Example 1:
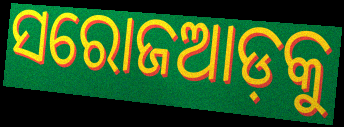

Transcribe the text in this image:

ସରୋଜଆଡ଼କୁ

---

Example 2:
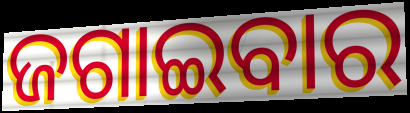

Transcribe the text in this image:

ଜଗାଇବାର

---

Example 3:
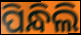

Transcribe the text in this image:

ପିନ୍ଧିଲି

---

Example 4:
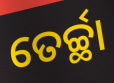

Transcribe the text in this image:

ତେର୍ଚ୍ଛା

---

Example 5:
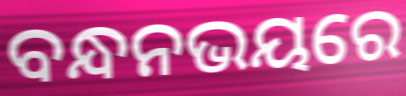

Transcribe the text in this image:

ବନ୍ଧନଭୟରେ